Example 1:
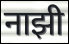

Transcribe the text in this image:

नाझी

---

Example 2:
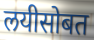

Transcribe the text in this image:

लयीसोबत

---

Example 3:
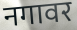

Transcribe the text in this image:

नगावर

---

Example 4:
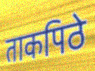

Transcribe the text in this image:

ताकपिठे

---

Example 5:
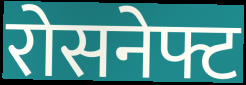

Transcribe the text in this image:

रोसनेफ्ट